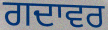
ਗਦਾਵਰ